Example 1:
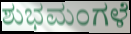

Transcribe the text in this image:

ಶುಭಮಂಗಳೆ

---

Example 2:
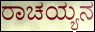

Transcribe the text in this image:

ರಾಚಯ್ಯನ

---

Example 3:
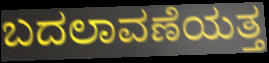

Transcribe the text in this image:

ಬದಲಾವಣೆಯತ್ತ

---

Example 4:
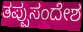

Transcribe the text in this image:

ತಪ್ಪುಸಂದೇಶ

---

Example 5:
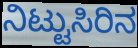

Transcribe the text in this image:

ನಿಟ್ಟುಸಿರಿನ